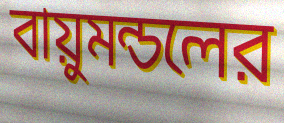
বায়ুমন্ডলের